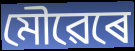
মৌৱেৰে